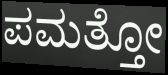
ಪಮತ್ತೋ